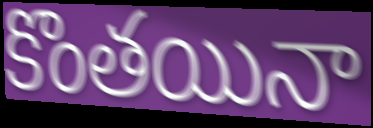
కొంతయినా